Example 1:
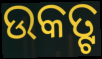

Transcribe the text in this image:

ଉକତ୍ଟ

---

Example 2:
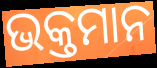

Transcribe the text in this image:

ଭକ୍ତମାନ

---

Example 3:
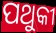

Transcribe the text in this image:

ପଥୁକୀ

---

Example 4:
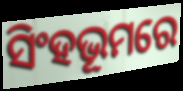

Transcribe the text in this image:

ସିଂହଭୂମରେ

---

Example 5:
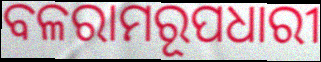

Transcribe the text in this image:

ବଳରାମରୂପଧାରୀ